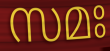
സമഃ